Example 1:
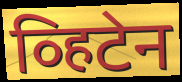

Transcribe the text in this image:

व्हिटेन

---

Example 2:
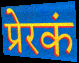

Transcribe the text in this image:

प्रेरकं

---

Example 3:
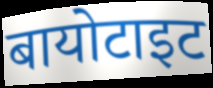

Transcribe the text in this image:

बायोटाइट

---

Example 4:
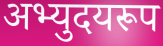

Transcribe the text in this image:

अभ्युदयरूप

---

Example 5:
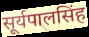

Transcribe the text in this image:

सूर्यपालसिंह